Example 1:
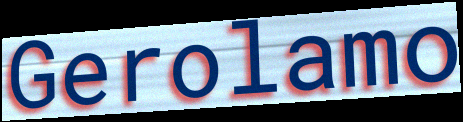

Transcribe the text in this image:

Gerolamo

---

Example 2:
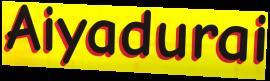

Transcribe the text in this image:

Aiyadurai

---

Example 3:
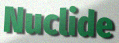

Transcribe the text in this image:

Nuclide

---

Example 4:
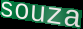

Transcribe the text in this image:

souza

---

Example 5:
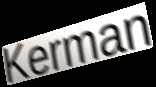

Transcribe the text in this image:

Kerman